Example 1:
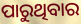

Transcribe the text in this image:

ପାରୁଥିବାର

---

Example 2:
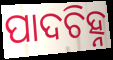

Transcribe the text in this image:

ପାଦଚିହ୍ନ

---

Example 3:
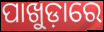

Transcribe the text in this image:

ପାଖୁଡ଼ାରେ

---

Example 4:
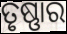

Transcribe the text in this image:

ତୃଷ୍ଣାର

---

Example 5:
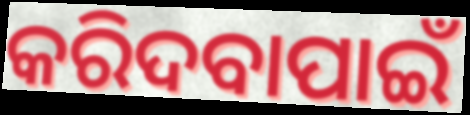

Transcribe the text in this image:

କରିଦବାପାଇଁ